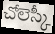
చోలెస్కీ